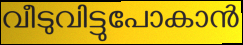
വീടുവിട്ടുപോകാൻ